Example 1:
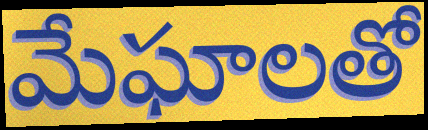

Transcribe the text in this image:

మేఘాలతో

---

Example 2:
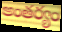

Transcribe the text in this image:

అంతర్యం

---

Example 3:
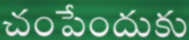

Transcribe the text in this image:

చంపేందుకు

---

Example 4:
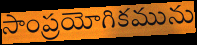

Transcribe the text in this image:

సాంప్రయోగికమును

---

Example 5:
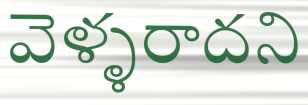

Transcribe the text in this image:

వెళ్ళరాదని